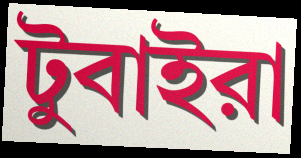
টুবাইরা